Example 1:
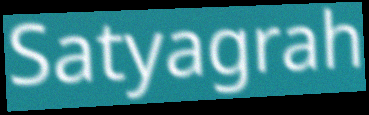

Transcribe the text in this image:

Satyagrah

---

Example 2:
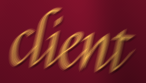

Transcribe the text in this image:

client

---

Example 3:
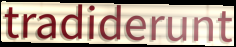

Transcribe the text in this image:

tradiderunt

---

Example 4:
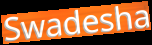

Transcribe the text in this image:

Swadesha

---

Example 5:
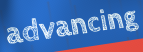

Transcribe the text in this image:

advancing